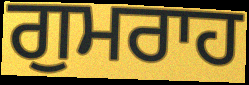
ਗੁਮਰਾਹ